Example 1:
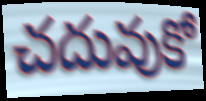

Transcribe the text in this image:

చదువుకో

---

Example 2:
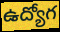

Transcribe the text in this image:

ఉద్యోగ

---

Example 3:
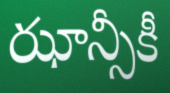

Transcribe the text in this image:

ఝాన్సీకీ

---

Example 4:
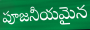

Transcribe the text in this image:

పూజనీయమైన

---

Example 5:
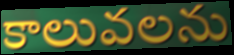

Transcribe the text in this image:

కాలువలను